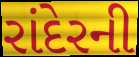
રાંદેરની